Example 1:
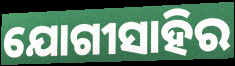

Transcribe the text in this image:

ଯୋଗୀସାହିର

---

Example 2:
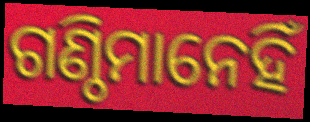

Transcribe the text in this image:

ଗଣ୍ଠିମାନେହିଁ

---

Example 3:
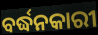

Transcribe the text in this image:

ବର୍ଦ୍ଧନକାରୀ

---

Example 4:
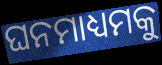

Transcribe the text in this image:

ଘନମାଧ୍ୟମକୁ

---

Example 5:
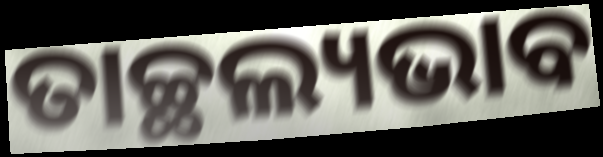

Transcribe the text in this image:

ତାଚ୍ଛଲ୍ୟଭାବ